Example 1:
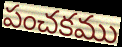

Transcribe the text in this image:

పంచకము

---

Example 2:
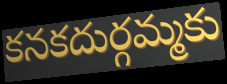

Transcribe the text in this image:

కనకదుర్గమ్మకు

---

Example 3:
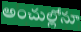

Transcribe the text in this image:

అంచుల్లోనూ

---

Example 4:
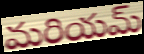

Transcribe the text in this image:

మరియమ్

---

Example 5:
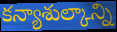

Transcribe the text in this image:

కన్యాశుల్కాన్ని